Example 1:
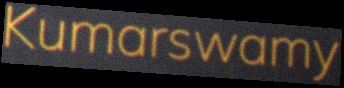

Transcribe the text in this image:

Kumarswamy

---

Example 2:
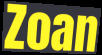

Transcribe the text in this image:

Zoan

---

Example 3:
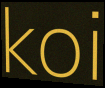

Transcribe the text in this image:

koi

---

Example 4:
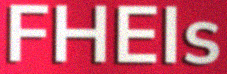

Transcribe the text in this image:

FHEIs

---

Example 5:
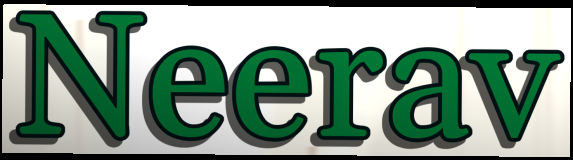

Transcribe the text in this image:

Neerav